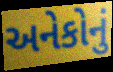
અનેકોનું